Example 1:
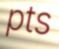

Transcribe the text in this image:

pts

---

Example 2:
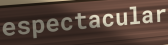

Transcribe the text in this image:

espectacular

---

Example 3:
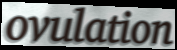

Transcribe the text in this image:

ovulation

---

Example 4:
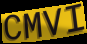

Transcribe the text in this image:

CMVI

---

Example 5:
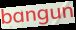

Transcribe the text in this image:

bangun